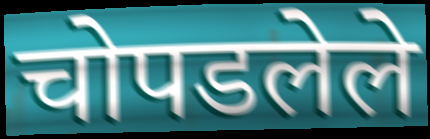
चोपडलेले